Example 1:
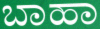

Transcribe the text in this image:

ಬಾಹಾ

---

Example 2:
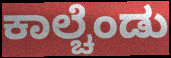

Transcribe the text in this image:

ಕಾಲ್ಚೆಂಡು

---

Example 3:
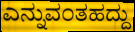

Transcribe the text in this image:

ಎನ್ನುವಂತಹದ್ದು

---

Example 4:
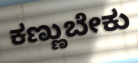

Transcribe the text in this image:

ಕಣ್ಣುಬೇಕು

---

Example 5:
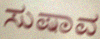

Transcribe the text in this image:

ಸುಷಾವ